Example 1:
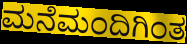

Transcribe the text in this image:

ಮನೆಮಂದಿಗಿಂತ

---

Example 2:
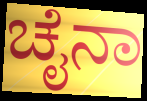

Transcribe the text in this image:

ಚೈನಾ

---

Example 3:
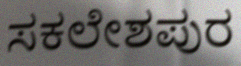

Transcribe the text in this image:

ಸಕಲೇಶಪುರ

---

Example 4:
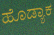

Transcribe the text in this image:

ಹೊಡ್ಯಾಕ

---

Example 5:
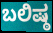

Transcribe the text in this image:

ಬಲಿಷ್ಠ